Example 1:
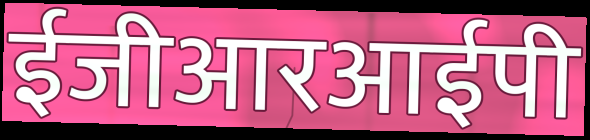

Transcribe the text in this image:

ईजीआरआईपी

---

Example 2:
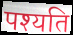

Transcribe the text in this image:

पश्यति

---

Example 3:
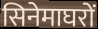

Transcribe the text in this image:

सिनेमाघरों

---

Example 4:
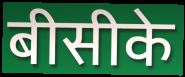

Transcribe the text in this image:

बीसीके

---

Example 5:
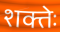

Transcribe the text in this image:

शक्तेः